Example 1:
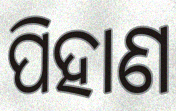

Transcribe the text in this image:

ପିହାଣ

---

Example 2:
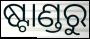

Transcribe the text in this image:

ଷ୍ଟାଣ୍ଡରୁ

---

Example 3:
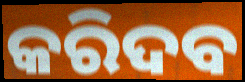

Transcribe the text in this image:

କରିଦବ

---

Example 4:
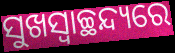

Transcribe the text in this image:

ସୁଖସ୍ଵାଚ୍ଛନ୍ଦ୍ୟରେ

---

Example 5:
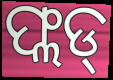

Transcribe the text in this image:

ଫ୍ଲଡ୍